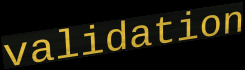
validation